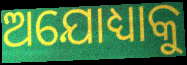
ଅଯୋଧ୍ୟାକୁ